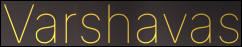
Varshavas